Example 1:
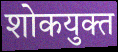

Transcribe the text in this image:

शोकयुक्त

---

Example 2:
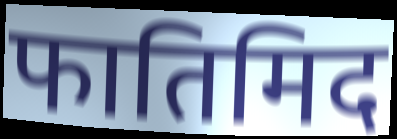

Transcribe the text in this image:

फातिमिद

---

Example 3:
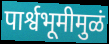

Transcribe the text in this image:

पार्श्वभूमीमुळं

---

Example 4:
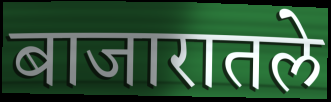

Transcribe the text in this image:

बाजारातले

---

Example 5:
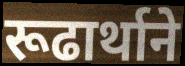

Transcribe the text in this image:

रूढार्थाने